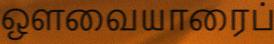
ஔவையாரைப்